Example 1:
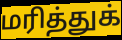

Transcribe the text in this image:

மரித்துக்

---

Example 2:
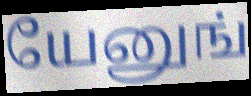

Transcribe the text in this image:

யேனுங்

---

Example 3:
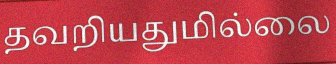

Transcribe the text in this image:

தவறியதுமில்லை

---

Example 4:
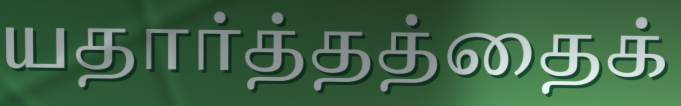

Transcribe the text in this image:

யதார்த்தத்தைக்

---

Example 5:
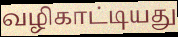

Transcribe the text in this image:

வழிகாட்டியது